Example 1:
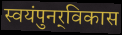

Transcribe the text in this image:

स्वयंपुनर्विकास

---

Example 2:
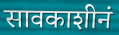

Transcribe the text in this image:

सावकाशीनं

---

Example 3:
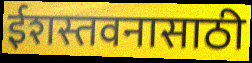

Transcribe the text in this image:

ईशस्तवनासाठी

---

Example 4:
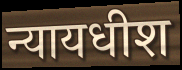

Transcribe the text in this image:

न्यायधीश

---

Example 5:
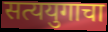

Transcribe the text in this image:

सत्ययुगाचा